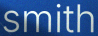
smith